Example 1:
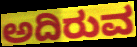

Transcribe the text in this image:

ಅದಿರುವ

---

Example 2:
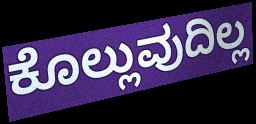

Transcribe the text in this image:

ಕೊಲ್ಲುವುದಿಲ್ಲ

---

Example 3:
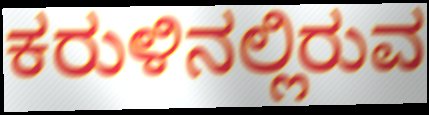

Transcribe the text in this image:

ಕರುಳಿನಲ್ಲಿರುವ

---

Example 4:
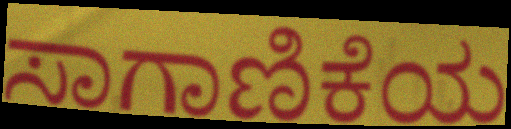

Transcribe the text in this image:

ಸಾಗಾಣಿಕೆಯ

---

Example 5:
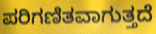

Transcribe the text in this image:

ಪರಿಗಣಿತವಾಗುತ್ತದೆ